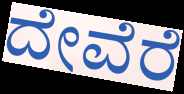
ದೇವೆರೆ